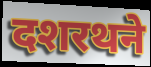
दशरथने